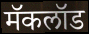
मॅकलॉड